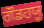
ਗੌਡਹਯੂ